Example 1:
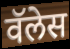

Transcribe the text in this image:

वॅलेस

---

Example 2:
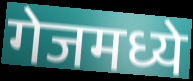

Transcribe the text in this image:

गेजमध्ये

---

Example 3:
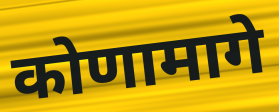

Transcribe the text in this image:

कोणामागे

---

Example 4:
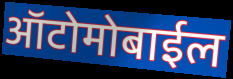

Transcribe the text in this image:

ऑटोमोबाईल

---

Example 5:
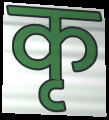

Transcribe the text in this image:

कृ